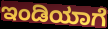
ಇಂಡಿಯಾಗೆ